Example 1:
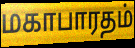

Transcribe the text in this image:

மகாபாரதம்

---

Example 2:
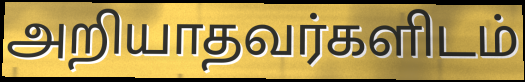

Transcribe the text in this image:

அறியாதவர்களிடம்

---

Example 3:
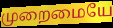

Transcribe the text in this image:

முறைமையே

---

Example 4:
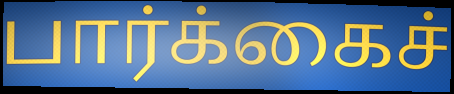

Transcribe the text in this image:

பார்க்கைச்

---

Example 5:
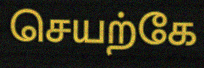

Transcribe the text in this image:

செயற்கே